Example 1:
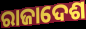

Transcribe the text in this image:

ରାଜାଦେଶ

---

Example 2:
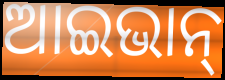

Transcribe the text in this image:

ଆଇଭାନ୍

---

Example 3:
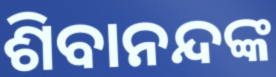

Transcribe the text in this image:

ଶିବାନନ୍ଦଙ୍କ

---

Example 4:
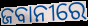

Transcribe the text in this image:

ଜବାନୀରେ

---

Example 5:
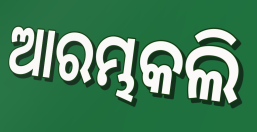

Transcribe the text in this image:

ଆରମ୍ଭକଲି